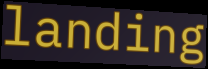
landing